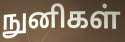
நுனிகள்